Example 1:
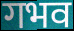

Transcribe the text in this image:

गभव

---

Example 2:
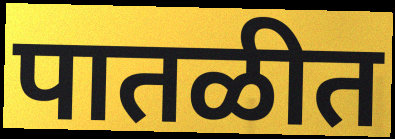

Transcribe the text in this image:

पातळीत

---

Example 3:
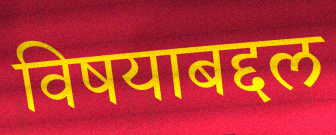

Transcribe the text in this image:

विषयाबद्दल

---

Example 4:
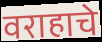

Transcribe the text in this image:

वराहाचे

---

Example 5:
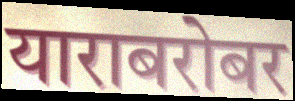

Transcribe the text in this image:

याराबरोबर